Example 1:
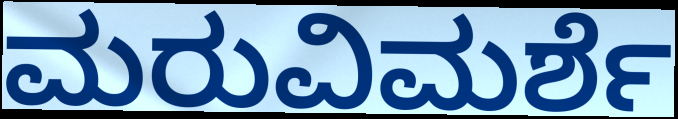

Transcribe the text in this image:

ಮರುವಿಮರ್ಶೆ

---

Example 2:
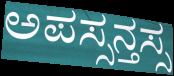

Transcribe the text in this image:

ಅಪಸ್ಸನ್ತಸ್ಸ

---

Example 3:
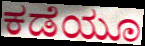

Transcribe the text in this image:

ಕಡೆಯೂ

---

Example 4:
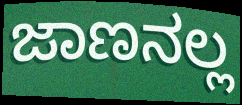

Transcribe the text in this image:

ಜಾಣನಲ್ಲ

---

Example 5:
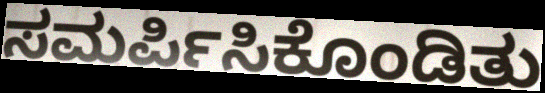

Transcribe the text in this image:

ಸಮರ್ಪಿಸಿಕೊಂಡಿತು